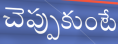
చెప్పుకుంటే